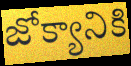
జోక్యానికి